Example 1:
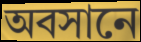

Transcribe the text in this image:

অবসানে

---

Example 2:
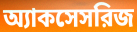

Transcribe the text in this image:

অ্যাকসেসরিজ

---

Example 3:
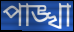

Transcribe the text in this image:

পাঙ্খা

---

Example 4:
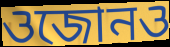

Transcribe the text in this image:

ওজোনও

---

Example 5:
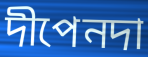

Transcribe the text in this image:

দীপেনদা